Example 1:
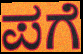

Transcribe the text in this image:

ಪಗೆ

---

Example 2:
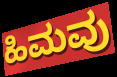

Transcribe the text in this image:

ಹಿಮವು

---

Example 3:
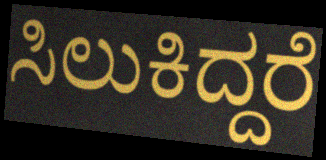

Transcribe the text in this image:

ಸಿಲುಕಿದ್ದರೆ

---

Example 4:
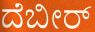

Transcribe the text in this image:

ದೆಬೀರ್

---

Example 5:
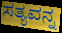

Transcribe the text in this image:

ಸತ್ಯವನ್ನ